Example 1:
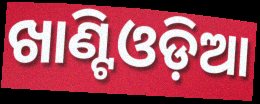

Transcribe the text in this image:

ଖାଣ୍ଟିଓଡ଼ିଆ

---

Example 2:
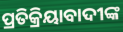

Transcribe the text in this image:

ପ୍ରତିକ୍ରିୟାବାଦୀଙ୍କ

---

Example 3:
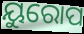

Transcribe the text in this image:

ୟୁରୋପ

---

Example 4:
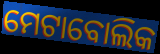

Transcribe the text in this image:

ମେଟାବୋଲିକ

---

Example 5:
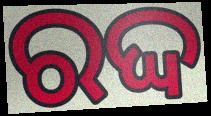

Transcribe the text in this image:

ରଦ୍ଦ